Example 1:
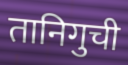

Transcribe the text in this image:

तानिगुची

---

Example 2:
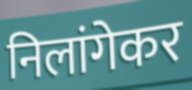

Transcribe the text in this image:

निलांगेकर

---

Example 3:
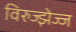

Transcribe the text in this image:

विरुज्झेज्ज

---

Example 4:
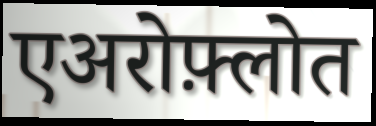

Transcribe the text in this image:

एअरोफ़्लोत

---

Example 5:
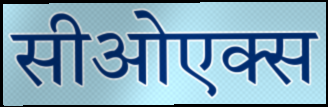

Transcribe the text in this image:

सीओएक्स